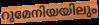
റുമേനിയയിലും